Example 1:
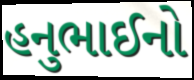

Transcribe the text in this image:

હનુભાઈનો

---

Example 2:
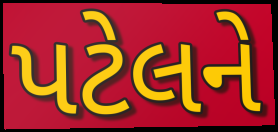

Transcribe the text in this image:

પટેલને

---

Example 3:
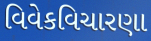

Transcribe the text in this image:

વિવેકવિચારણા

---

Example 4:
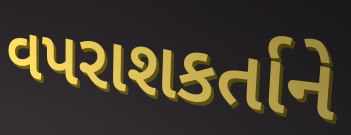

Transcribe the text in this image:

વપરાશકર્તાને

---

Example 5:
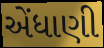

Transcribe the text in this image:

એંધાણી